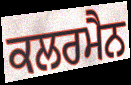
ਕਲਰਮੈਨ